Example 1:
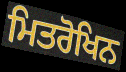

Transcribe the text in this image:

ਮਿਤਰੋਖਿਨ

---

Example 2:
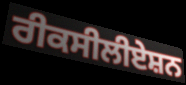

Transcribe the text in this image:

ਰੀਕਸੀਲੀਏਸ਼ਨ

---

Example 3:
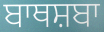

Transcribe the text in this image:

ਬਾਥਸ਼ਬਾ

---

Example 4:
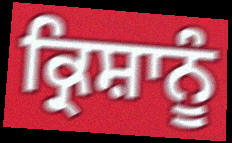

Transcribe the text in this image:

ਕ੍ਰਿਸ਼ਾਨੂੰ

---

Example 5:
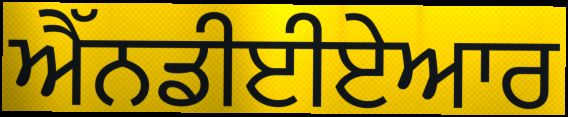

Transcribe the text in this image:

ਐੱਨਡੀਈਏਆਰ